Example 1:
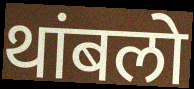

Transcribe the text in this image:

थांबलो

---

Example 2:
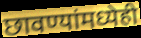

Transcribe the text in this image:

छावण्यांमध्येही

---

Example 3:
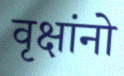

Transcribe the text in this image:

वृक्षांनो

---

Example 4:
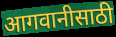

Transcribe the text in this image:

आगवानीसाठी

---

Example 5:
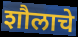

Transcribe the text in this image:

शौलाचे